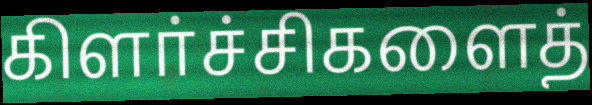
கிளர்ச்சிகளைத்